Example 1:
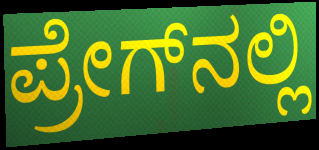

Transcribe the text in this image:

ಪ್ರೇಗ್‌ನಲ್ಲಿ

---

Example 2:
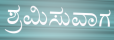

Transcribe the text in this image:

ಶ್ರಮಿಸುವಾಗ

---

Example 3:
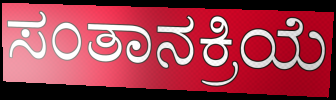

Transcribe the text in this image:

ಸಂತಾನಕ್ರಿಯೆ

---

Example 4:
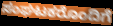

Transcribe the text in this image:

ಸಂಘಟಕರೊಂದಿಗೆ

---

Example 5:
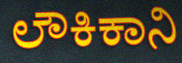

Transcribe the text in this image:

ಲೌಕಿಕಾನಿ